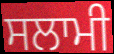
ਸਲਾਮੀ